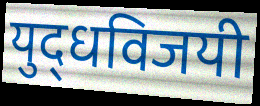
युद्धविजयी